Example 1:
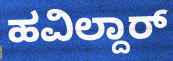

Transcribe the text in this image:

ಹವಿಲ್ದಾರ್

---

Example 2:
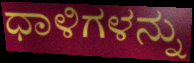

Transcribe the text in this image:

ಧಾಳಿಗಳನ್ನು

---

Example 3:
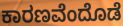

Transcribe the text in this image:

ಕಾರಣವೆಂದೊಡೆ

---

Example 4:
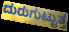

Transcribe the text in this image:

ದುರುಗುಟ್ಟುತ್ತ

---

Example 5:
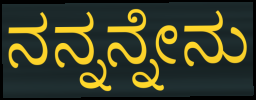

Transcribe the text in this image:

ನನ್ನನ್ನೇನು